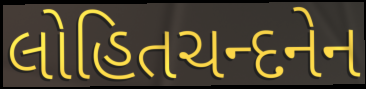
લોહિતચન્દનેન